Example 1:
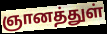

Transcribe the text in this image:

ஞானத்துள்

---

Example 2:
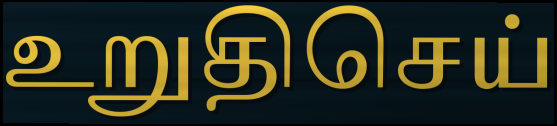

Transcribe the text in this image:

உறுதிசெய்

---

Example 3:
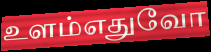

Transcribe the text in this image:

உளம்எதுவோ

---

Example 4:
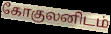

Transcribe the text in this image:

கோகுலனிடம்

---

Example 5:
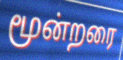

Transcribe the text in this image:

மூன்றரை